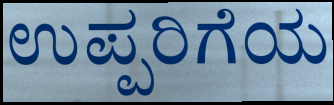
ಉಪ್ಪರಿಗೆಯ